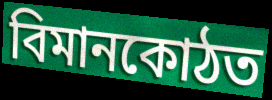
বিমানকোঠত